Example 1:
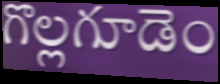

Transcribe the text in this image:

గొల్లగూడెం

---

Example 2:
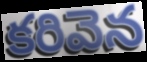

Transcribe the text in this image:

కరివెన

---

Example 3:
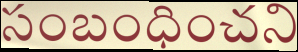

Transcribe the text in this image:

సంబంధించని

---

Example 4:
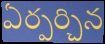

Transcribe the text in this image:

ఏర్పర్చిన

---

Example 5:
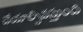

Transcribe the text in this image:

చేయాల్సివస్తుంది